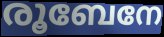
രൂബേനേ